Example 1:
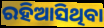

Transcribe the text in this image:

ରହିଆସିଥିବା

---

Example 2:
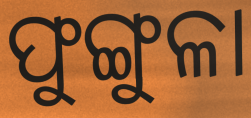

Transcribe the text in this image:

ଫୁଙ୍ଗୁଳା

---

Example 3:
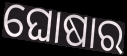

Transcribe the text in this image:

ଘୋଷାର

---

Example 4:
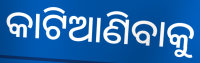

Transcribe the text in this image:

କାଟିଆଣିବାକୁ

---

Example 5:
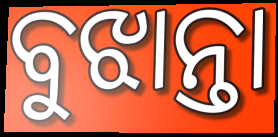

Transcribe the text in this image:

ବୁଝାନ୍ତା